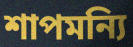
শাপমন্যি